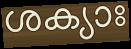
ശക്യാഃ